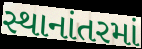
સ્થાનાંતરમાં